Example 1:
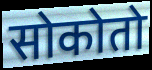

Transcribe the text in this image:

सोकोतो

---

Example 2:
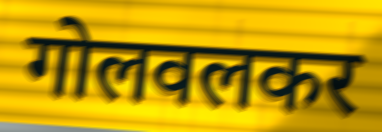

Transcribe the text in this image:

गोलवलकर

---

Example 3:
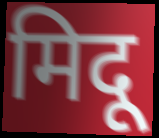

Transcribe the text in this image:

मिदू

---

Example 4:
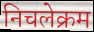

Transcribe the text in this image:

निचलेक्रम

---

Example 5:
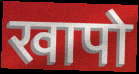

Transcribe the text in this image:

खापो